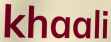
khaali